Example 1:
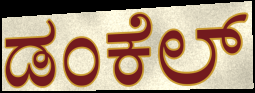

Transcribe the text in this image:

ಡಂಕೆಲ್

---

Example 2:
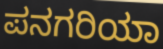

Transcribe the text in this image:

ಪನಗರಿಯಾ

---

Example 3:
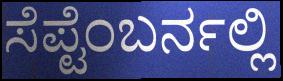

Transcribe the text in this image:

ಸೆಪ್ಟೆಂಬರ್ನಲ್ಲಿ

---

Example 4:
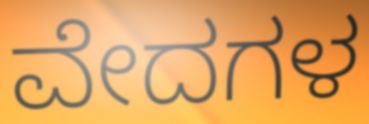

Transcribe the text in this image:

ವೇದಗಳ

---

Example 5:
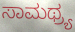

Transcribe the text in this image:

ಸಾಮಥ್ರ್ಯ